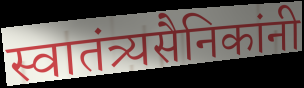
स्वातंत्र्यसैनिकांनी